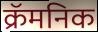
क्रॅमनिक